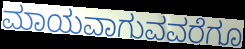
ಮಾಯವಾಗುವವರೆಗೂ